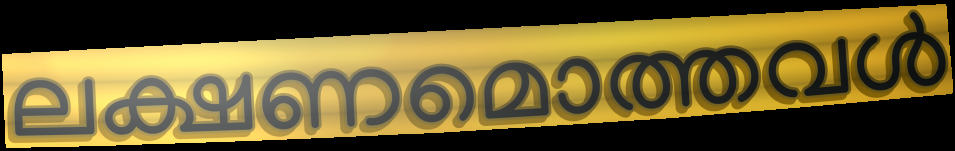
ലക്ഷണമൊത്തവൾ